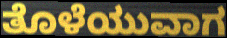
ತೊಳೆಯುವಾಗ